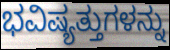
ಭವಿಷ್ಯತ್ತುಗಳನ್ನು